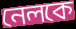
নেলকে